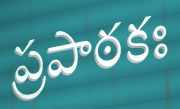
ప్రపాఠకః